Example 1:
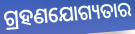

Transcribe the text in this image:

ଗ୍ରହଣଯୋଗ୍ୟତାର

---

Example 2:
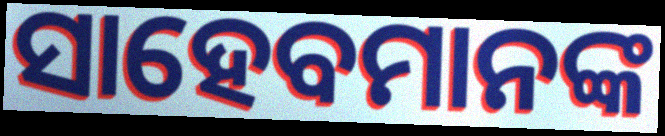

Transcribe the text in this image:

ସାହେବମାନଙ୍କ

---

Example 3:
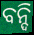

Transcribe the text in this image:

ବନ୍ଦି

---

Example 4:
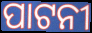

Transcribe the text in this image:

ପାଟନୀ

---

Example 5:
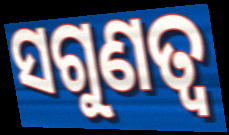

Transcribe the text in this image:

ସଗୁଣତ୍ଵ